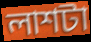
লাশটা